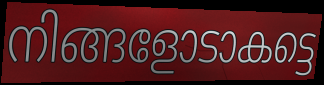
നിങ്ങളോടാകട്ടെ